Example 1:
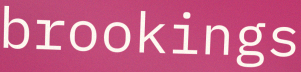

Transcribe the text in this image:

brookings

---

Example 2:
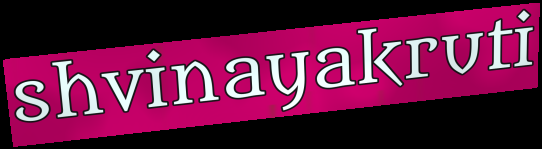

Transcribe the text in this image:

shvinayakruti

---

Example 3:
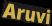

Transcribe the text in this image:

Aruvi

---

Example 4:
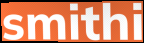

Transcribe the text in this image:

smithi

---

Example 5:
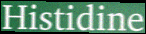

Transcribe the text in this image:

Histidine